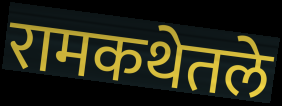
रामकथेतले